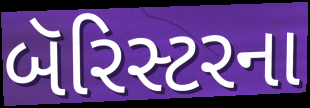
બૅરિસ્ટરના